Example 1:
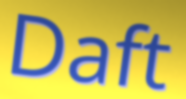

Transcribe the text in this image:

Daft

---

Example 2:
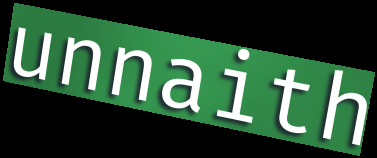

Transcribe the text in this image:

unnaith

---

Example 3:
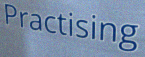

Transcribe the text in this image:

Practising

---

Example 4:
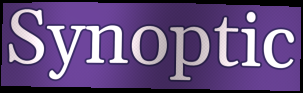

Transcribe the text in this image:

Synoptic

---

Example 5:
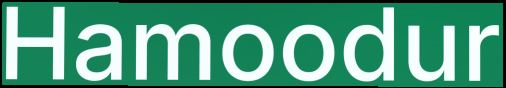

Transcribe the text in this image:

Hamoodur